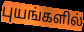
புயங்களில்